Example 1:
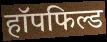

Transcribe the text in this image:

हॉपफिल्ड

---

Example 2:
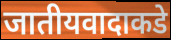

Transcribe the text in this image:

जातीयवादाकडे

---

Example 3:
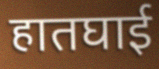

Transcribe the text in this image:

हातघाई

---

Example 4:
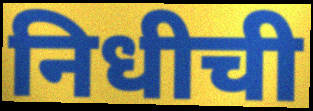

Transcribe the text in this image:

निधीची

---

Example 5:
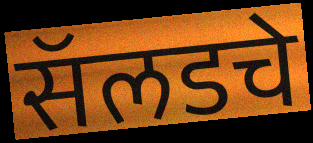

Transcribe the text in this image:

सॅलडचे